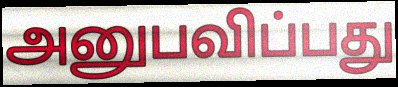
அனுபவிப்பது